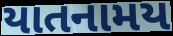
યાતનામય